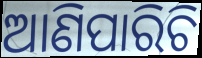
ଆଣିପାରିଚି